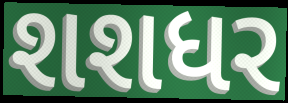
શશધર